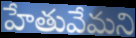
హేతువేమని